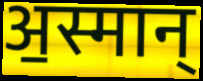
अ॒स्मान्